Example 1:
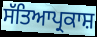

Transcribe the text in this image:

ਸੱਤਿਆਪ੍ਰਕਾਸ਼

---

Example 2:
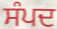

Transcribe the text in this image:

ਸੰਪਦ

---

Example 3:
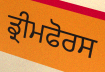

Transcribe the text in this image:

ਡ੍ਰੀਮਫੋਰਸ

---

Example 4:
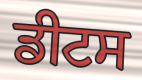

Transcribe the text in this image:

ਡੀਟਸ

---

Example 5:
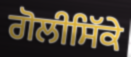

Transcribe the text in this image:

ਗੋਲੀਸਿੱਕੇ